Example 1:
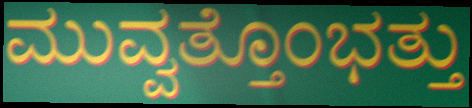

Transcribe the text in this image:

ಮುವ್ವತ್ತೊಂಭತ್ತು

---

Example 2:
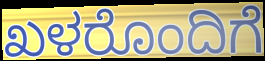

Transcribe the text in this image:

ಖಳರೊಂದಿಗೆ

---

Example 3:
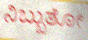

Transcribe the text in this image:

ನಿಬ್ಬುತೋ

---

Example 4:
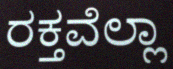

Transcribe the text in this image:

ರಕ್ತವೆಲ್ಲಾ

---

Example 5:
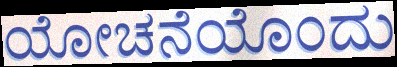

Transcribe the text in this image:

ಯೋಚನೆಯೊಂದು